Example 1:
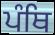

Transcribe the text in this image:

ਪੰਥਿ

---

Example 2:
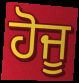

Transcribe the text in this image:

ਹੋਜੂ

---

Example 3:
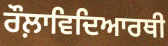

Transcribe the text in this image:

ਰੌਲ਼ਾਵਿਦਿਆਰਥੀ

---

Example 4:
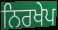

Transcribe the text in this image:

ਨਿਰਖੇਪ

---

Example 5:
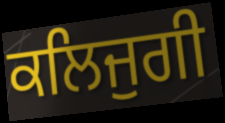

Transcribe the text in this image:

ਕਲਿਜੁਗੀ